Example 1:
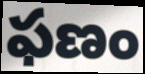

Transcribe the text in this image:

ఫణం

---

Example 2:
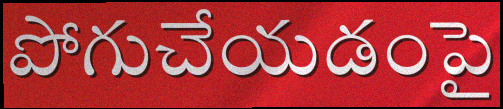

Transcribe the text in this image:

పోగుచేయడంపై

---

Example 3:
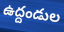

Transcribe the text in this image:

ఉద్దండుల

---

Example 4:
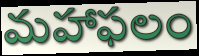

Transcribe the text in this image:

మహాఫలం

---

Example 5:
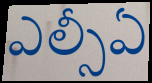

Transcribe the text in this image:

ఎల్సీఏ